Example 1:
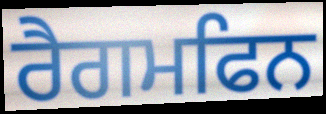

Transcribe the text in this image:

ਰੈਗਮਫਿਨ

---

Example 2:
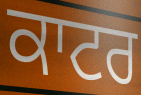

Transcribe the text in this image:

ਕਾਟਰ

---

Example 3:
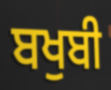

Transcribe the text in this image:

ਬਖੁਬੀ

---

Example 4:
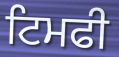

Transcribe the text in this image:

ਟਿਮਫੀ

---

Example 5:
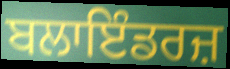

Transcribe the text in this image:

ਬਲਾਇੰਡਰਜ਼